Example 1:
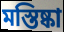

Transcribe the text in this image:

মস্তিষ্কা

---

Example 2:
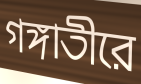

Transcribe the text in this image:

গঙ্গাতীরে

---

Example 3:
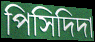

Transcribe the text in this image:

পিসিদিদা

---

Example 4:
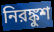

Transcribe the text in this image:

নিরঙ্কুশ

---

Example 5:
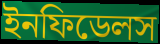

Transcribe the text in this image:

ইনফিডেলস